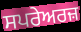
ਸਪਰੇਅਰਜ਼